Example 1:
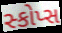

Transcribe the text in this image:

સ્કોપ્સ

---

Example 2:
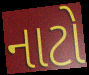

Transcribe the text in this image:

નાટો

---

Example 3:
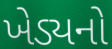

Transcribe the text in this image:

ખેડ્યનો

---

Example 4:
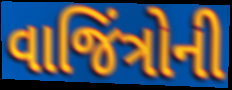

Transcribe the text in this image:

વાજિંત્રોની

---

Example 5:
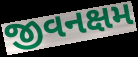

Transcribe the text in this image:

જીવનક્ષમ